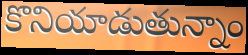
కొనియాడుతున్నాం